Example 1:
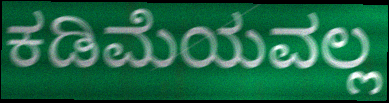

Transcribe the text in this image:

ಕಡಿಮೆಯವಲ್ಲ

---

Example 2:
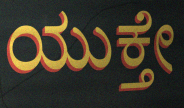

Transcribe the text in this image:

ಯುಕ್ತೇ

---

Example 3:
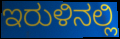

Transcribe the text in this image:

ಇರುಳಿನಲ್ಲಿ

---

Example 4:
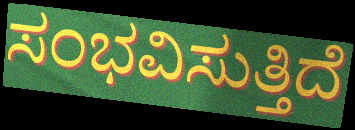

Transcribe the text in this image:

ಸಂಭವಿಸುತ್ತಿದೆ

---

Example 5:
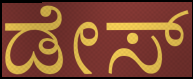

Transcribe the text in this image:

ಡೇಸ್